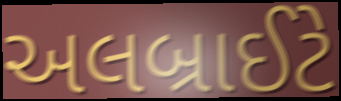
અલબ્રાઈટે